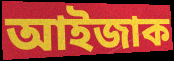
আইজাক